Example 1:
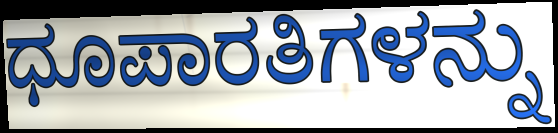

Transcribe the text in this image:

ಧೂಪಾರತಿಗಳನ್ನು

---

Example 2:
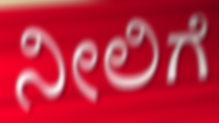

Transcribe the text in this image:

ನೀಲಿಗೆ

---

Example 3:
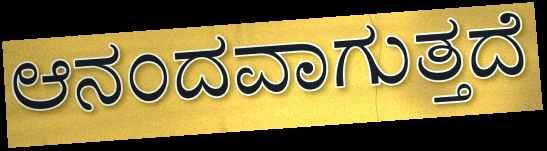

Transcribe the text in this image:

ಆನಂದವಾಗುತ್ತದೆ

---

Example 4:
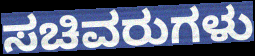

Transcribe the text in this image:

ಸಚಿವರುಗಳು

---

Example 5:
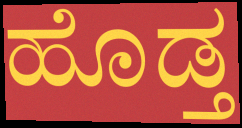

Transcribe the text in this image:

ಹೊಡ್ತ